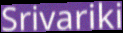
Srivariki